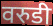
वरुडी